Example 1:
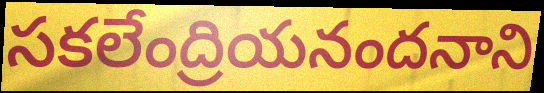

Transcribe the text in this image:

సకలేంద్రియనందనాని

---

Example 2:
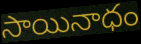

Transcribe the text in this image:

సాయినాధం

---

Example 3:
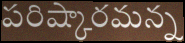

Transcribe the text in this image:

పరిష్కారమన్న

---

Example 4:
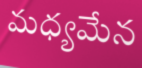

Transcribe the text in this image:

మధ్యమేన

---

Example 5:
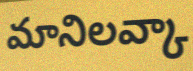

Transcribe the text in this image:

మానిలవ్కా